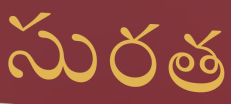
సురత